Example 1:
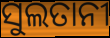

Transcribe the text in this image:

ସୁଲତାନୀ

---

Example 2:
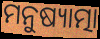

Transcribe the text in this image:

ମନୁଷ୍ୟାତ୍ମା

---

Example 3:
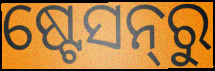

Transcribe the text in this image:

ଷ୍ଟେସନ୍‌ରୁ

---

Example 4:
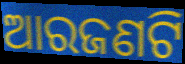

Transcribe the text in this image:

ଆରଜଣଟି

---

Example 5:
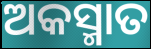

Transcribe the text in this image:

ଅକସ୍ମାତ